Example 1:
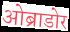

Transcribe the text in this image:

ओब्राडोर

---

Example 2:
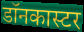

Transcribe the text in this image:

डॉनकास्टर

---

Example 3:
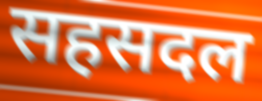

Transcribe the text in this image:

सहसदल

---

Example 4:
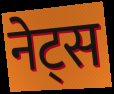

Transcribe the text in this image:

नेट्स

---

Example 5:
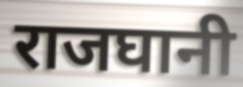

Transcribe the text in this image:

राजघानी